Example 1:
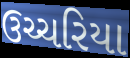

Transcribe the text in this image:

ઉચ્ચરિયા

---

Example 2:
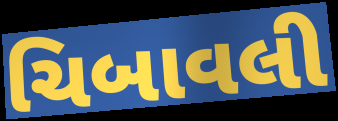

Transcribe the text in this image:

ચિબાવલી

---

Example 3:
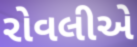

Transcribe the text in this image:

રોવલીએ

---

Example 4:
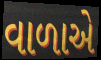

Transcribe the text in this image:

વાળાએ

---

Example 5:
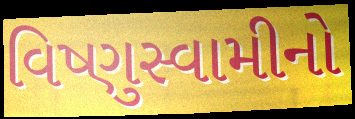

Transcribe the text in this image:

વિષ્ણુસ્વામીનો